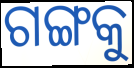
ଗଙ୍ଗକୁ